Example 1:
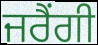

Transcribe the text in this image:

ਜਰੈਂਗੀ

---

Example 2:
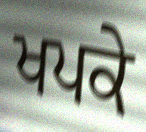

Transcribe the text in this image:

ਖਪਕੇ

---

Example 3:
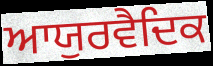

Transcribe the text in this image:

ਆਯੁਰਵੈਦਿਕ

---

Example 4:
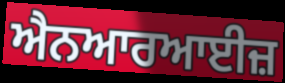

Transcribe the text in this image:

ਐਨਆਰਆਈਜ਼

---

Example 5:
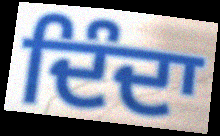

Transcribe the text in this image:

ਦਿੰਦਾ